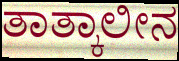
ತಾತ್ಕಾಲೀನ